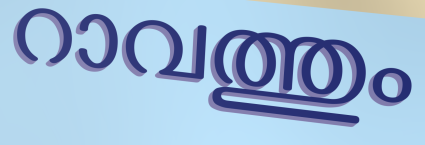
റാവത്തും